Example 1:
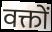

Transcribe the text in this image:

वक्तों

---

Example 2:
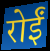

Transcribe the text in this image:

रोईं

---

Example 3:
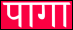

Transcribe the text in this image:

पागा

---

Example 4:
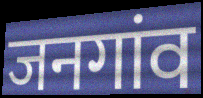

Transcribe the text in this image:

जनगांव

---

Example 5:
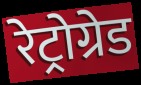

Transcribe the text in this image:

रेट्रोग्रेड